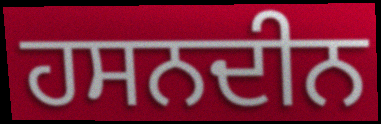
ਹਸਨਦੀਨ